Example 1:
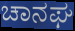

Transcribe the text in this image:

ಚಾನಘ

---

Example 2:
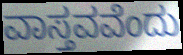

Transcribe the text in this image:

ವಾಸ್ತವವೆಂದು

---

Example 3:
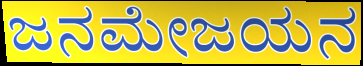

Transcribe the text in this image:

ಜನಮೇಜಯನ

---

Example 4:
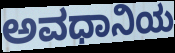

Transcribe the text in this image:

ಅವಧಾನಿಯ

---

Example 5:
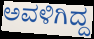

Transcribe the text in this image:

ಅವಳಿಗಿದ್ದ